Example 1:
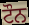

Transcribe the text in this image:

ਟੌਨ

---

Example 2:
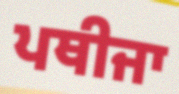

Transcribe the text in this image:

ਪਥੀਜਾ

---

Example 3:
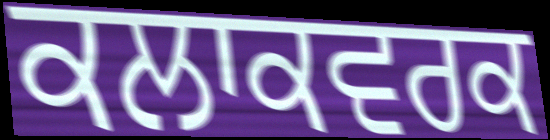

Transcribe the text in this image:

ਕਲਾਕਵਰਕ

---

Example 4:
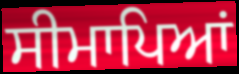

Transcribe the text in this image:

ਸੀਮਾਪਿਆਂ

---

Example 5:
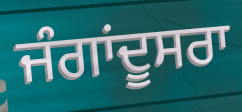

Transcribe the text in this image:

ਜੰਗਾਂਦੂਸਰਾ